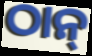
ଠାନ୍